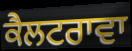
ਕੈਲਟਰਾਵਾ